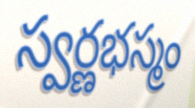
స్వర్ణభస్మం